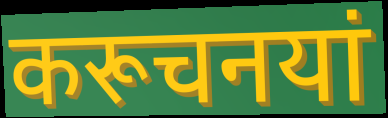
करूचनयां